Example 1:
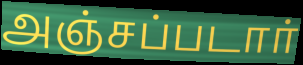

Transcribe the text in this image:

அஞ்சப்படார்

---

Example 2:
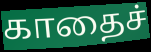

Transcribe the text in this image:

காதைச்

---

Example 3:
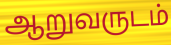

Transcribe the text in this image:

ஆறுவருடம்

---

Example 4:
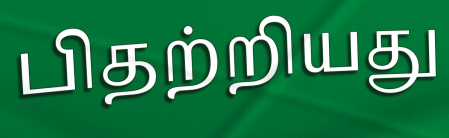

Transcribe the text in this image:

பிதற்றியது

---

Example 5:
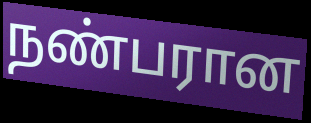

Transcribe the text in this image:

நண்பரான